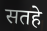
सतहे